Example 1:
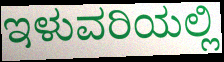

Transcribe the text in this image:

ಇಳುವರಿಯಲ್ಲಿ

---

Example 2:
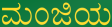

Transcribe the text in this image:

ಮಂಜಿಯ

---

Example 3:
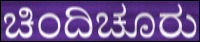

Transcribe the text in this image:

ಚಿಂದಿಚೂರು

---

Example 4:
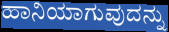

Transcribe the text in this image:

ಹಾನಿಯಾಗುವುದನ್ನು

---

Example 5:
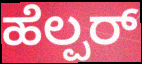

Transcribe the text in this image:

ಹೆಲ್ಪರ್